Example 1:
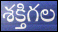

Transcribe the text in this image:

శక్తిగల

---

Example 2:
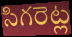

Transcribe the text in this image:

సిగరెట్ల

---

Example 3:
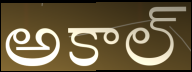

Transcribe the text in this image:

అకాల్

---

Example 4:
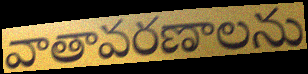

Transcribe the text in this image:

వాతావరణాలను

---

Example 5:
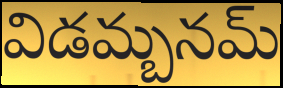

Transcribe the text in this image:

విడమ్బనమ్